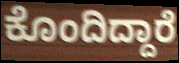
ಕೊಂದಿದ್ದಾರೆ